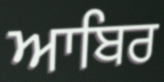
ਆਬਿਰ